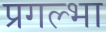
प्रगल्भा